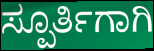
ಸ್ಪೂರ್ತಿಗಾಗಿ